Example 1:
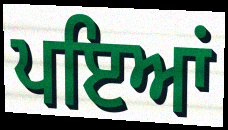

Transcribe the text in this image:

ਪਇਆਂ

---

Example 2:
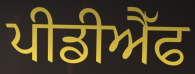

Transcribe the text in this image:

ਪੀਡੀਐੱਫ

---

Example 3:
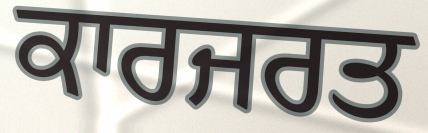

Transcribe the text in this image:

ਕਾਰਜਰਤ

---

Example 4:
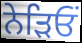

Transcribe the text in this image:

ਨੇੜਿਓਂ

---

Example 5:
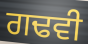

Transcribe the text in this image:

ਗਢਵੀ